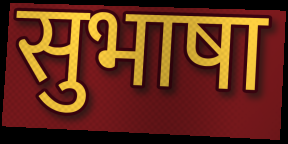
सुभाषा